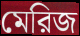
মেরিজ